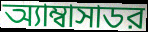
অ্যাম্বাসাডর